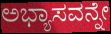
ಅಭ್ಯಾಸವನ್ನೇ